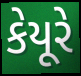
કેયૂરે